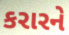
કરારને